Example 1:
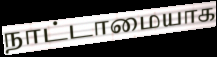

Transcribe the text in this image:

நாட்டாமையாக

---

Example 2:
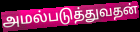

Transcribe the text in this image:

அமல்படுத்துவதன்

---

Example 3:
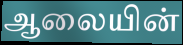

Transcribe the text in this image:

ஆலையின்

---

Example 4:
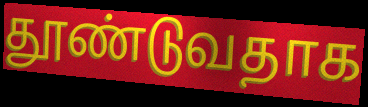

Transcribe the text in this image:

தூண்டுவதாக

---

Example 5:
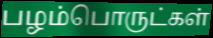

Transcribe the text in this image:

பழம்பொருட்கள்